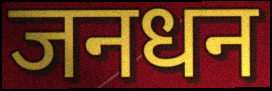
जनधन